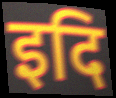
इदि